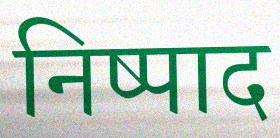
निष्पाद